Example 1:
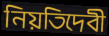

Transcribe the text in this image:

নিয়তিদেবী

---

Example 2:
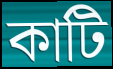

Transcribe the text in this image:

কাটি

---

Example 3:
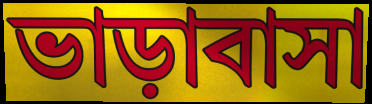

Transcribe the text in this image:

ভাড়াবাসা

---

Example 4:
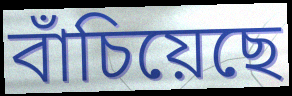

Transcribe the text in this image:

বাঁচিয়েছে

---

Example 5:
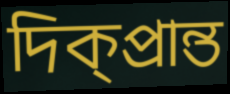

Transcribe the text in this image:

দিক্‌প্রান্ত